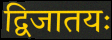
द्विजातयः